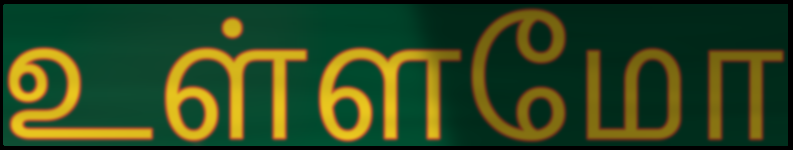
உள்ளமோ